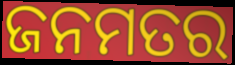
ଜନମତର